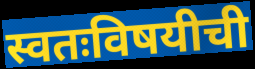
स्वतःविषयीची